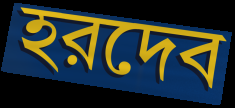
হরদেব